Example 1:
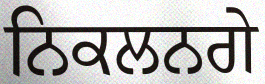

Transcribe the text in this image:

ਨਿਕਲਨਗੇ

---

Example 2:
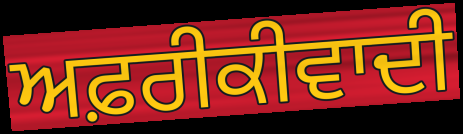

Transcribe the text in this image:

ਅਫ਼ਰੀਕੀਵਾਦੀ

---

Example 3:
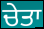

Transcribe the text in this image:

ਚੇਤਾ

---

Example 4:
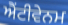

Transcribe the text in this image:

ਐਂਟੀਵੇਨਮ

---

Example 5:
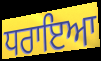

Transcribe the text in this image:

ਧਰਾਇਆ